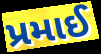
પ્રમાઈ